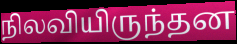
நிலவியிருந்தன